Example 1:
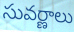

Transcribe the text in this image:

సువర్ణాలు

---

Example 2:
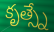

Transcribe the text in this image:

కృత్స్నే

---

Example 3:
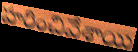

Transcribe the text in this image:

హరించివేశాయి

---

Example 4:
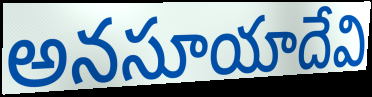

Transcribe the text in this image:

అనసూయాదేవి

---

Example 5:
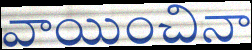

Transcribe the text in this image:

వాయించినా